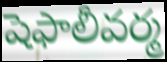
షెఫాలీవర్మ